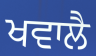
ਖਵਾਲੈ